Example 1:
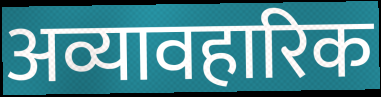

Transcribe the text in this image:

अव्यावहारिक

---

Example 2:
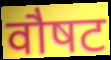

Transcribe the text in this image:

वौषट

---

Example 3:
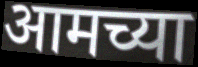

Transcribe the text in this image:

आमच्या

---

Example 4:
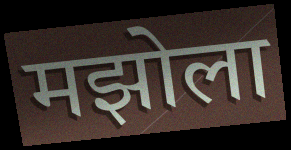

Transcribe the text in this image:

मझोला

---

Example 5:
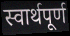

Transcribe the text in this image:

स्वार्थपूर्ण